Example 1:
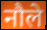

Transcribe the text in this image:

नौले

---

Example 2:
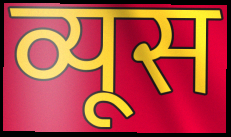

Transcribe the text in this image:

व्यूस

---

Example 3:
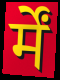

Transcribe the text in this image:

र्में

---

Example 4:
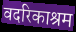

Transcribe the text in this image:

वदरिकाश्रम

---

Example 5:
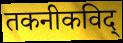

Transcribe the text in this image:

तकनीकविद्